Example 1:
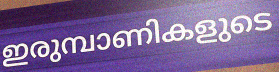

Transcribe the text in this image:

ഇരുമ്പാണികളുടെ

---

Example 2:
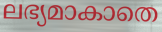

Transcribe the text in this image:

ലഭ്യമാകാതെ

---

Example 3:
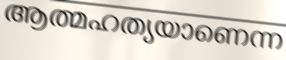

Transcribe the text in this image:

ആത്മഹത്യയാണെന്ന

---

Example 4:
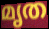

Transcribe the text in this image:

മൃത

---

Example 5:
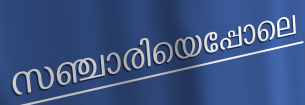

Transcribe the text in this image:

സഞ്ചാരിയെപ്പോലെ